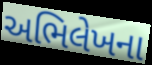
અભિલેખના